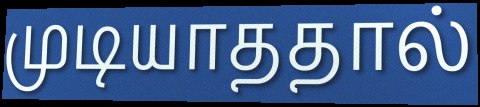
முடியாததால்